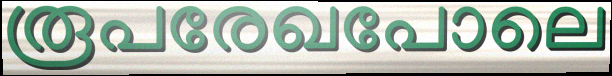
രൂപരേഖപോലെ